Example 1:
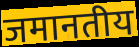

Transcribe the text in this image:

जमानतीय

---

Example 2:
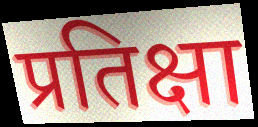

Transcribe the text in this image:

प्रतिक्षा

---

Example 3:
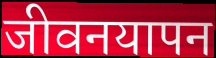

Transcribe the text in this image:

जीवनयापन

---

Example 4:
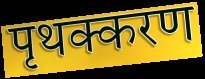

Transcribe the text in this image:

पृथक्करण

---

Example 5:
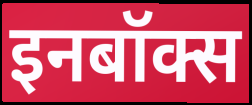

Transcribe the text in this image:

इनबॉक्स